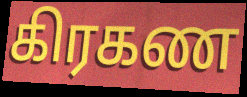
கிரகண